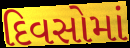
દિવસોમાં